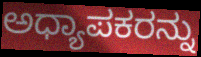
ಅಧ್ಯಾಪಕರನ್ನು